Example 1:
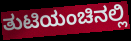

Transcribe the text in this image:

ತುಟಿಯಂಚಿನಲ್ಲಿ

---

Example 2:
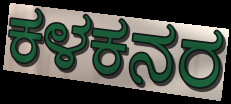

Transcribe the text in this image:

ಕಳಕನರ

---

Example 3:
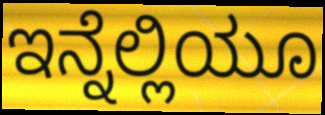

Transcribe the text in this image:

ಇನ್ನೆಲ್ಲಿಯೂ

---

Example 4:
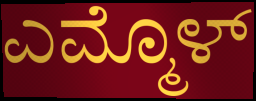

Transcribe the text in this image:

ಎಮ್ಮೊಳ್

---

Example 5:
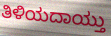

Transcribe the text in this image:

ತಿಳಿಯದಾಯ್ತು